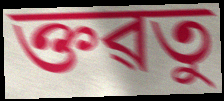
ক্তৱতু